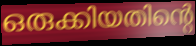
ഒരുക്കിയതിന്റെ